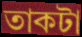
তাকটা